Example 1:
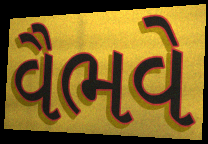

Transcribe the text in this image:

વૈભવે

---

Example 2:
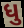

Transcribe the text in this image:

ધુ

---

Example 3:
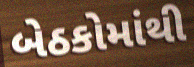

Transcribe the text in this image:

બેઠકોમાંથી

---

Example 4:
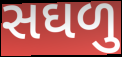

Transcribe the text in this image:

સઘળુ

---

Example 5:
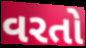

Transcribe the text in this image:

વરતો